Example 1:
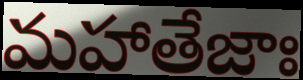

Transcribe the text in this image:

మహాతేజాః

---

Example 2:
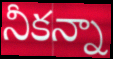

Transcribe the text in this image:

నీకన్నా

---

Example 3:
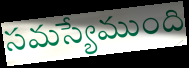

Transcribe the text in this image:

సమస్యేముంది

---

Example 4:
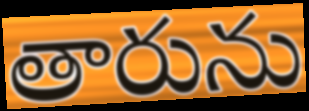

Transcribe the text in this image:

తారును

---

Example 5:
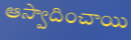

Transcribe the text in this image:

ఆస్వాదించాయి